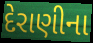
દેરાણીના